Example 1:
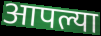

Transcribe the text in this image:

आपल्या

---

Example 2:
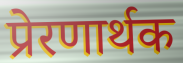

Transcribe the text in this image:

प्रेरणार्थक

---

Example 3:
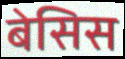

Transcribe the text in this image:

बेसिस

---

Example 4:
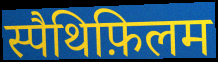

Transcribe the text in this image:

स्पैथिफ़िलम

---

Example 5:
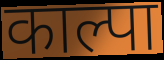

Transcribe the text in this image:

काल्पा